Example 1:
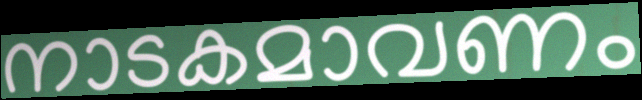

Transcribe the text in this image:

നാടകമാവണം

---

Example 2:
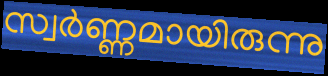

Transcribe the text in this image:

സ്വർണ്ണമായിരുന്നു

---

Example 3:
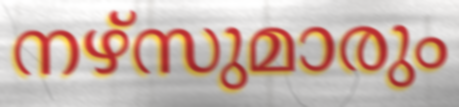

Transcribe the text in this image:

നഴ്സുമാരും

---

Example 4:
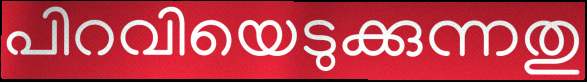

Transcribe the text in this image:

പിറവിയെടുക്കുന്നതു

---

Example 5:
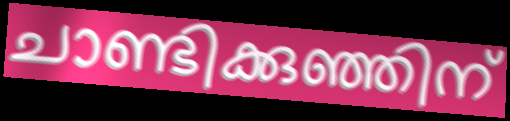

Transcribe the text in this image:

ചാണ്ടിക്കുഞ്ഞിന്